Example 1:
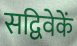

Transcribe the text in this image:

सद्विवेकें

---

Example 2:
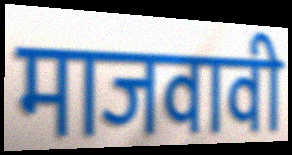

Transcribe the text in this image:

माजवावी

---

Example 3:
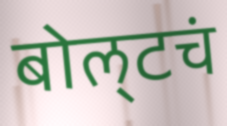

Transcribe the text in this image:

बोल्टचं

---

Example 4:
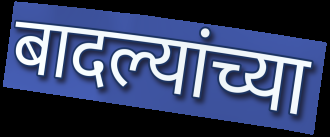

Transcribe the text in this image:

बादल्यांच्या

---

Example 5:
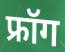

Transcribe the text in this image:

फ्रॉग